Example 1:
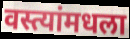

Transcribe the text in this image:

वस्त्यांमधला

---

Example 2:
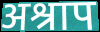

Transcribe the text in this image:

अश्राप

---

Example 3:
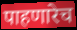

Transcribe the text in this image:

पाहणारेच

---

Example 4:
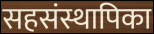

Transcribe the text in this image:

सहसंस्थापिका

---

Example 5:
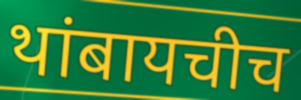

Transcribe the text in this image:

थांबायचीच